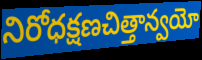
నిరోధక్షణచిత్తాన్వయో